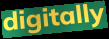
digitally